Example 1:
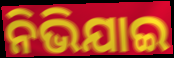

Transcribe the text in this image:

ନିଭିଯାଇ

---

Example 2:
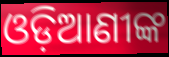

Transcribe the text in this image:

ଓଡ଼ିଆଣୀଙ୍କ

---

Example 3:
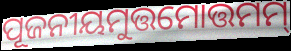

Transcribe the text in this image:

ପୂଜନୀୟମୁତ୍ତମୋତ୍ତମମ୍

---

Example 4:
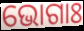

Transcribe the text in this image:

ଭୋଗାଃ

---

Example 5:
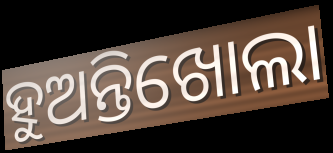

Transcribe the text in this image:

ହୁଅନ୍ତିଖୋଲା